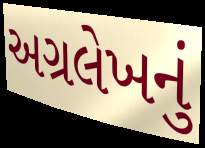
અગ્રલેખનું